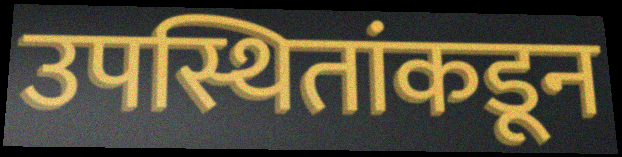
उपस्थितांकडून